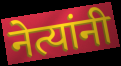
नेत्यांनी